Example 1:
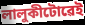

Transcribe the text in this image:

লালুকীটোৱেই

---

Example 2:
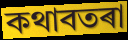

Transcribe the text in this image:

কথাবতৰা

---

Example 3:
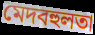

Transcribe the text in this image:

মেদবহুলতা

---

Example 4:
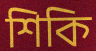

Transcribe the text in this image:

শিকি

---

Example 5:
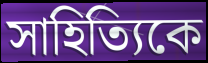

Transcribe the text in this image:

সাহিত্যিকে